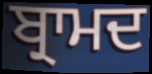
ਬ੍ਰਾਮਦ